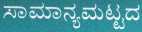
ಸಾಮಾನ್ಯಮಟ್ಟದ